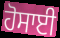
ਹੋਸਾਈ